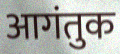
आगंतुक